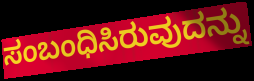
ಸಂಬಂಧಿಸಿರುವುದನ್ನು